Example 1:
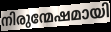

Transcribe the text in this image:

നിരുന്മേഷമായി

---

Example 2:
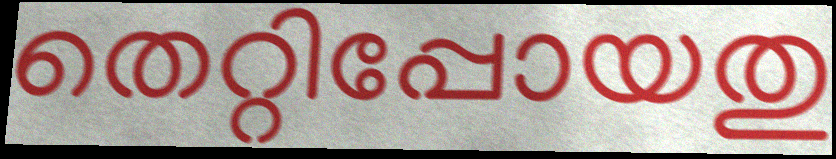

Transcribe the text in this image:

തെറ്റിപ്പോയതു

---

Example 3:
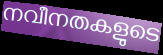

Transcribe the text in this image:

നവീനതകളുടെ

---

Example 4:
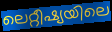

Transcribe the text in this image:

ലെറ്റീഷ്യയിലെ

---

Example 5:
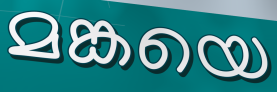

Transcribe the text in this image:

മങ്കയെ